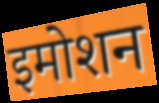
इमोशन